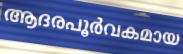
ആദരപൂർവകമായ